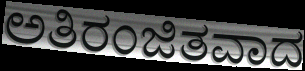
ಅತಿರಂಜಿತವಾದ